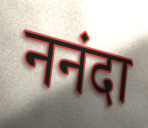
ननंदा